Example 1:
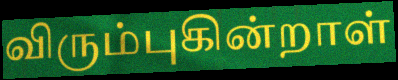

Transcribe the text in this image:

விரும்புகின்றாள்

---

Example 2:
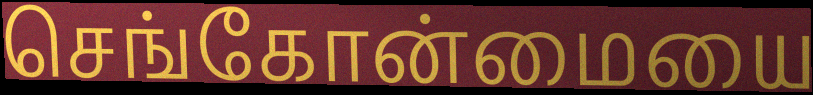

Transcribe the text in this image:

செங்கோன்மையை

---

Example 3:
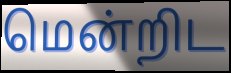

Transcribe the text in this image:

மென்றிட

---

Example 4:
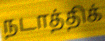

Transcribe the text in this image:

நடாத்திக்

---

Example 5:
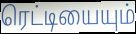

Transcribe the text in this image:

ரெட்டியையும்